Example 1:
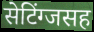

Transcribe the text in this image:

सेटिंग्जसह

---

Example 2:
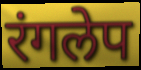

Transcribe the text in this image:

रंगलेप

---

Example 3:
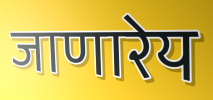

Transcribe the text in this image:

जाणारेय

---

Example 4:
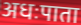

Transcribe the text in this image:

अधःपाता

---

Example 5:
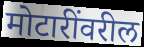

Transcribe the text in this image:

मोटारींवरील